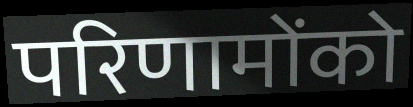
परिणामोंको